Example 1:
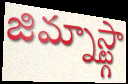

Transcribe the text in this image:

జిమ్నాస్ట్గా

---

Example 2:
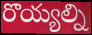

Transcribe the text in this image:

రొయ్యల్ని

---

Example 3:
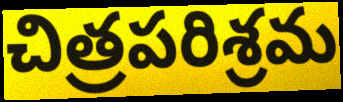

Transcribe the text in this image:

చిత్రపరిశ్రమ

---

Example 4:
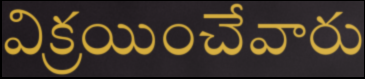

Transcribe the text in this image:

విక్రయించేవారు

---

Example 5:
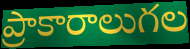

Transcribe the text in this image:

ప్రాకారాలుగల